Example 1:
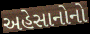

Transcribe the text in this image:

અહેસાનોનો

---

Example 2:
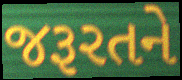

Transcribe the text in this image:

જરૂરતને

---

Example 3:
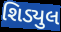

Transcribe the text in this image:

શિડ્યુલ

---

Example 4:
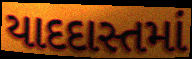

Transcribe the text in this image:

યાદદાસ્તમાં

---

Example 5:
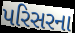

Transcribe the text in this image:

પરિસરના